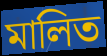
মালিত